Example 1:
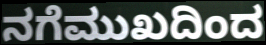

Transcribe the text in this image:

ನಗೆಮುಖದಿಂದ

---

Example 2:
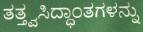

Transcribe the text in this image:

ತತ್ತ್ವಸಿದ್ಧಾಂತಗಳನ್ನು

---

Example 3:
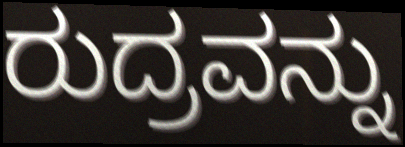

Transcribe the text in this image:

ರುದ್ರವನ್ನು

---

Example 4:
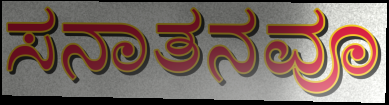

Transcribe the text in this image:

ಸನಾತನವೂ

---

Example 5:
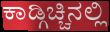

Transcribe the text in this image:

ಕಾಡ್ಗಿಚ್ಚಿನಲ್ಲಿ